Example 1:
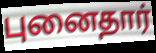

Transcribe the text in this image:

புனைதார்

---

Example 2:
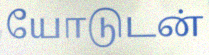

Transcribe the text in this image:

யோடுடன்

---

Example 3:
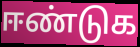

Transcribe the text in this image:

ஈண்டுக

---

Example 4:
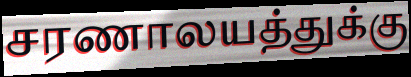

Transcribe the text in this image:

சரணாலயத்துக்கு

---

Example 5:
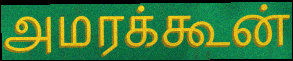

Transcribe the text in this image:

அமரக்கூன்